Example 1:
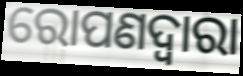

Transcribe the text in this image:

ରୋପଣଦ୍ୱାରା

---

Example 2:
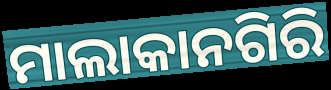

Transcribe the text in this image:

ମାଲାକାନଗିରି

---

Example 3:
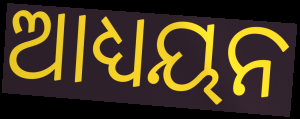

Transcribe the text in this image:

ଆଧ୍ୟୟନ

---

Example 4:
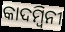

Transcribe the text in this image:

କାଦମ୍ୱିନୀ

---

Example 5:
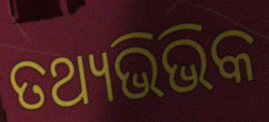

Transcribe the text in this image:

ତଥ୍ୟଭିଭିକ